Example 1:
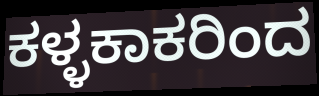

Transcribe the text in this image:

ಕಳ್ಳಕಾಕರಿಂದ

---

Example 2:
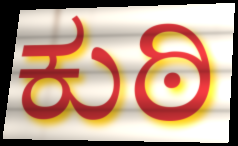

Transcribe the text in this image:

ಕುಠಿ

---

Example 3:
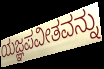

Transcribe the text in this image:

ಯಜ್ಞಪವೀತವನ್ನು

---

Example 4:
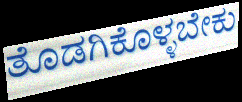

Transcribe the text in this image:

ತೊಡಗಿಕೊಳ್ಳಬೇಕು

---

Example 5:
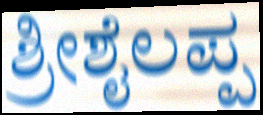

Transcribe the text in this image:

ಶ್ರೀಶೈಲಪ್ಪ